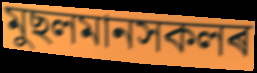
মুছলমানসকলৰ